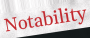
Notability